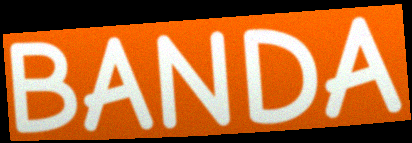
BANDA